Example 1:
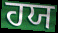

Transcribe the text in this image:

ਹਯ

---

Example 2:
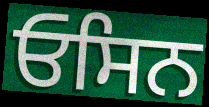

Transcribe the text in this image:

ਓਸਿਨ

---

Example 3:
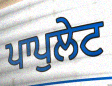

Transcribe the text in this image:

ਪਾਪੁਲੇਟ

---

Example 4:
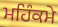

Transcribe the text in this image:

ਮਹਿੰਕਮੇ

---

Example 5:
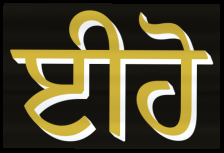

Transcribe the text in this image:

ਈਹੋ